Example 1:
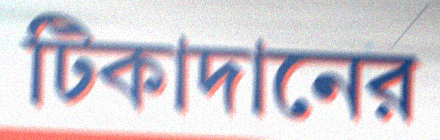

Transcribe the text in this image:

টিকাদানের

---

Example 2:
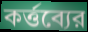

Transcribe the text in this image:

কর্ত্তব্যের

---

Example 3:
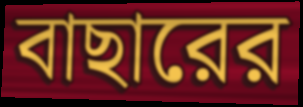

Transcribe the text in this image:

বাছারের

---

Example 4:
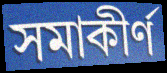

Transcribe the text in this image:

সমাকীর্ণ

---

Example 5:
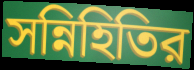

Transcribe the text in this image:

সন্নিহিতির